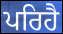
ਪਰਿਹੈ